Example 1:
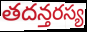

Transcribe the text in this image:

తదన్తరస్య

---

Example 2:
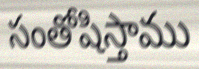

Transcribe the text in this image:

సంతోషిస్తాము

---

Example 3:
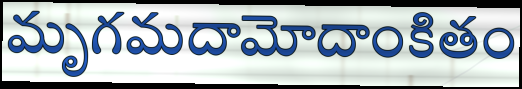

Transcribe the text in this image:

మృగమదామోదాంకితం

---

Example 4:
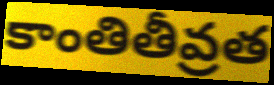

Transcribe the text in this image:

కాంతితీవ్రత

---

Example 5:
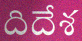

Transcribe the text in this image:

దిదేశ